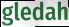
gledah